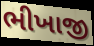
ભીખાજી